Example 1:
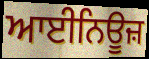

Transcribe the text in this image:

ਆਈਨਿਊਜ਼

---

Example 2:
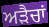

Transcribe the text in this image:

ਅੜੈਚਾਂ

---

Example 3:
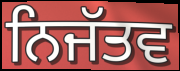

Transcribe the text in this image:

ਨਿਜੱਤਵ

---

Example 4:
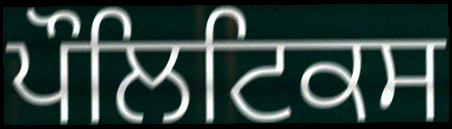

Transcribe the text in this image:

ਪੌਲਿਟਿਕਸ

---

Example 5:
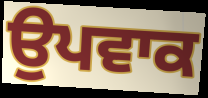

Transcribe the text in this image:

ਉਪਵਾਕ